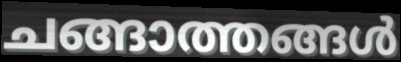
ചങ്ങാത്തങ്ങൾ